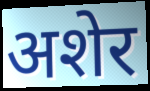
अशेर